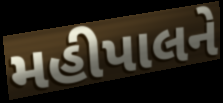
મહીપાલને